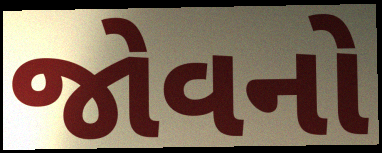
જોવનો